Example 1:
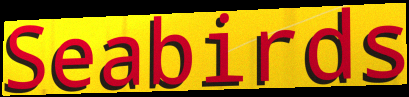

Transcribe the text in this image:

Seabirds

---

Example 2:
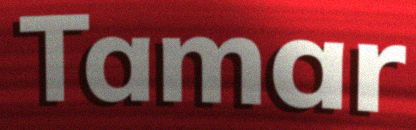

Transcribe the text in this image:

Tamar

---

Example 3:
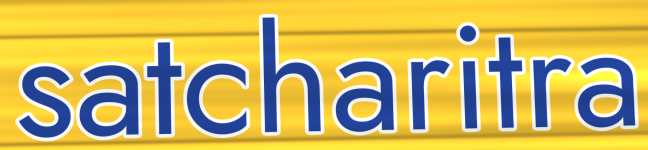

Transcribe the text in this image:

satcharitra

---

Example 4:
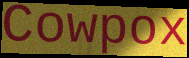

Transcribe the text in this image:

Cowpox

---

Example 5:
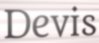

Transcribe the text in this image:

Devis